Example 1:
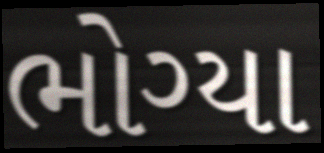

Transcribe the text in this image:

ભોગ્યા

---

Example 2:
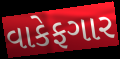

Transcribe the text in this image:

વાકેફગાર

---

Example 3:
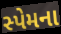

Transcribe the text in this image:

સ્પેમના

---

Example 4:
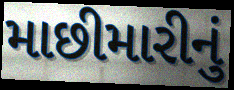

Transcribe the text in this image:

માછીમારીનું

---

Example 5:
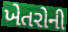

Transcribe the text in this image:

ખેતરોની